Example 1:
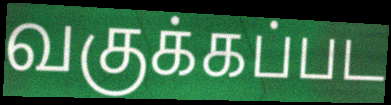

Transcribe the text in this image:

வகுக்கப்பட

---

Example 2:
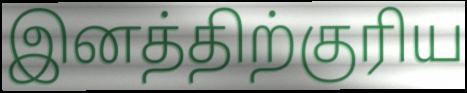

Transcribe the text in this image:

இனத்திற்குரிய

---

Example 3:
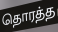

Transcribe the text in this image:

தொரத்த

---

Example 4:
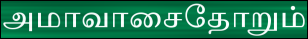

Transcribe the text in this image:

அமாவாசைதோறும்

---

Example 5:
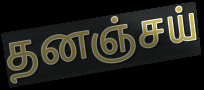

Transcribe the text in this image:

தனஞ்சய்